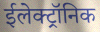
ईलेक्ट्रॉनिक